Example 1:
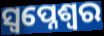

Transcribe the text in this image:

ସ୍ଵପ୍ନେଶ୍ଵର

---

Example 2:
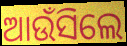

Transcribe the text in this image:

ଆଉଁସିଲେ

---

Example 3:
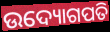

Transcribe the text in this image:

ଉଦ୍ୟୋଗପତି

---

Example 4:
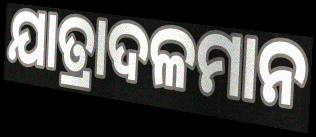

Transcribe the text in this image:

ଯାତ୍ରାଦଳମାନ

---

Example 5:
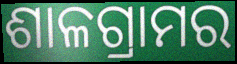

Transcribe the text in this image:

ଶାଳଗ୍ରାମର